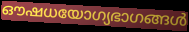
ഔഷധയോഗ്യഭാഗങ്ങൾ